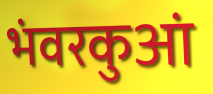
भंवरकुआं